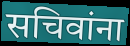
सचिवांना